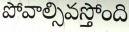
పోవాల్సివస్తోంది